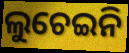
ଲୁଚେଇନି